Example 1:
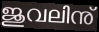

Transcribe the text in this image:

ജുവലിനു്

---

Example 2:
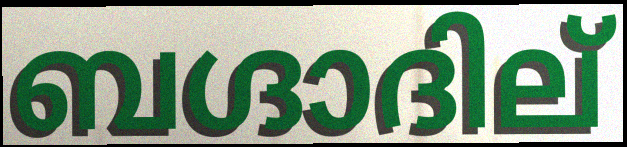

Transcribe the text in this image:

ബഗ്ദാദില്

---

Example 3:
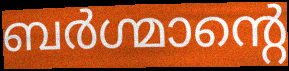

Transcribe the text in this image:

ബർഗ്മാന്റെ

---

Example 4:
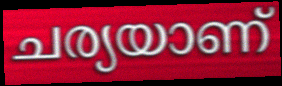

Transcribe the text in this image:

ചര്യയാണ്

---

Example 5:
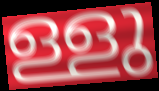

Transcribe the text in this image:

ള്ളു